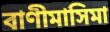
বাণীমাসিমা